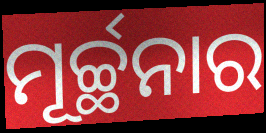
ମୂର୍ଚ୍ଛନାର